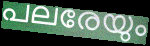
പലരേയും